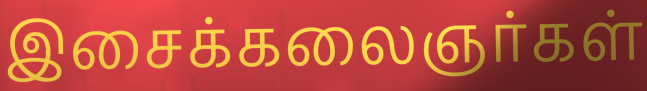
இசைக்கலைஞர்கள்